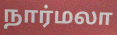
நார்மலா